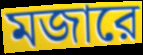
মজারে